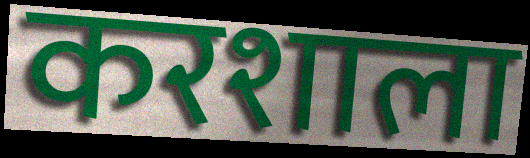
करशाला